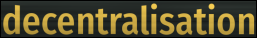
decentralisation